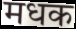
मधक